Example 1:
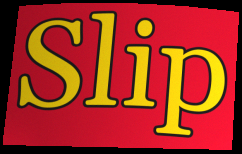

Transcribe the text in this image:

Slip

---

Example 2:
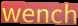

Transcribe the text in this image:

wench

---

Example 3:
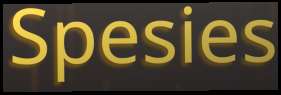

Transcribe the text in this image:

Spesies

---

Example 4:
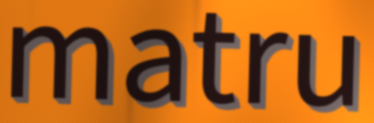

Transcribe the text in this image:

matru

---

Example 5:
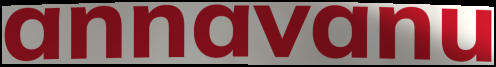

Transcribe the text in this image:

annavanu